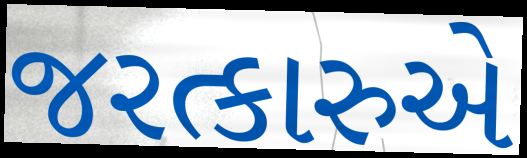
જરત્કારુએ